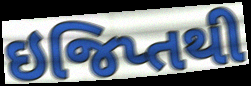
ઇજિપ્તથી